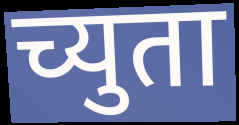
च्युता